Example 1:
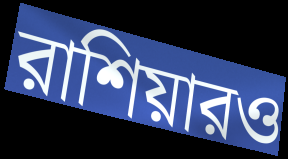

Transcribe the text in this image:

রাশিয়ারও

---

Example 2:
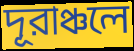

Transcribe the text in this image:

দূরাঞ্চলে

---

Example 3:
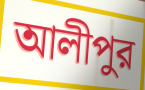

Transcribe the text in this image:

আলীপুর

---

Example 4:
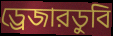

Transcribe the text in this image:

ড্রেজারডুবি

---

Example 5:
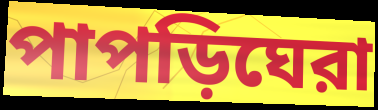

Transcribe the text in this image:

পাপড়িঘেরা